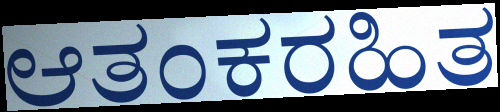
ಆತಂಕರಹಿತ